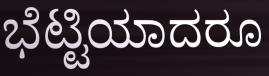
ಭೆಟ್ಟಿಯಾದರೂ